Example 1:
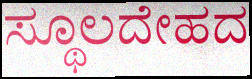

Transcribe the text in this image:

ಸ್ಥೂಲದೇಹದ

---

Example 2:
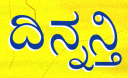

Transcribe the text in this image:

ದಿನ್ನನ್ತಿ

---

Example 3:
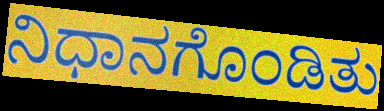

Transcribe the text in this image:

ನಿಧಾನಗೊಂಡಿತು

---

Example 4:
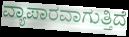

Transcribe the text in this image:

ವ್ಯಾಪಾರವಾಗುತ್ತಿದೆ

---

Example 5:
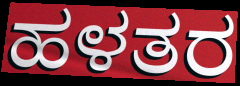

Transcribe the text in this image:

ಹಳತರ